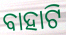
ବାହାଟି